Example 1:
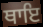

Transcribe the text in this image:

ਥਾਇ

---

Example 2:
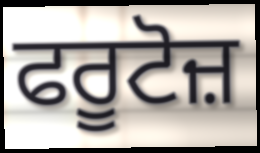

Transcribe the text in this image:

ਫਰੂਟੋਜ਼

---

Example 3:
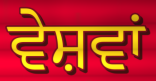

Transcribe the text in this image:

ਵੇਸ਼ਵਾਂ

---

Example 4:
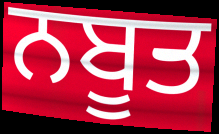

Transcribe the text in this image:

ਨਬੂਤ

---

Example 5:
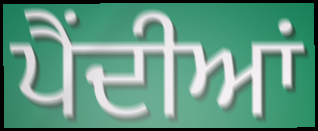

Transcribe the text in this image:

ਪੈਂਦੀਆਂ